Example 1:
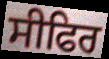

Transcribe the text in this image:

ਸੀਫਿਰ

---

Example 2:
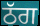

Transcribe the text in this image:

ਠੱਗ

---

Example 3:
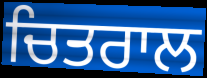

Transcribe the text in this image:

ਚਿਤਰਾਲ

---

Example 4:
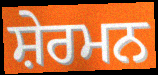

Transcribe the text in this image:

ਸ਼ੇਰਮਨ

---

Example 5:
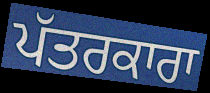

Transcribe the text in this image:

ਪੱਤਰਕਾਰਾ